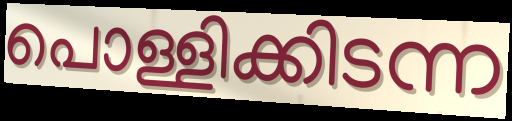
പൊള്ളിക്കിടന്ന